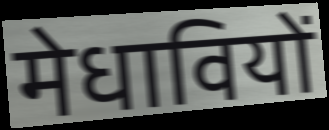
मेधावियों